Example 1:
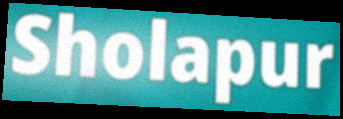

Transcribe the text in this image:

Sholapur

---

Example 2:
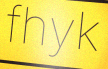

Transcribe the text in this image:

fhyk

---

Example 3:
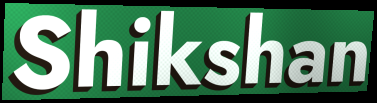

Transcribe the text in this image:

Shikshan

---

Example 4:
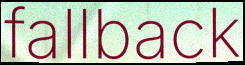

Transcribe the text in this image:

fallback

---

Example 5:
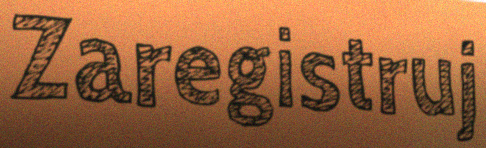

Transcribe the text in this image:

Zaregistruj